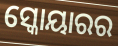
ସ୍କୋୟାରର